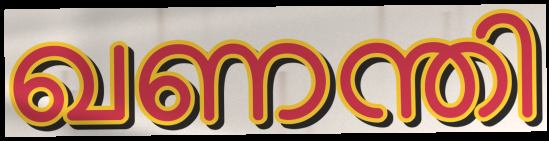
ഖണന്തി